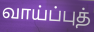
வாய்ப்புத்